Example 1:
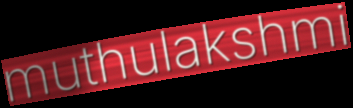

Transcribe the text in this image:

muthulakshmi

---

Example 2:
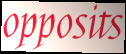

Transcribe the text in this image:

opposits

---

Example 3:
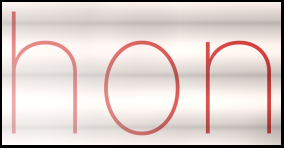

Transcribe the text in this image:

hon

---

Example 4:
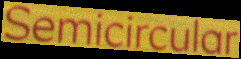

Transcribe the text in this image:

Semicircular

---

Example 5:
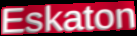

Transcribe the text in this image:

Eskaton